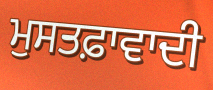
ਮੁਸਤਫ਼ਾਵਾਦੀ